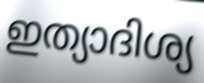
ഇത്യാദിശ്യ